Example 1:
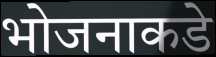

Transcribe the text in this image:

भोजनाकडे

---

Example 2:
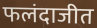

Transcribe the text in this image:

फलंदाजीत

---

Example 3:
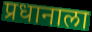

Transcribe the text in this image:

प्रधानाला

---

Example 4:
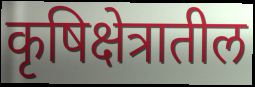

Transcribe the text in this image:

कृषिक्षेत्रातील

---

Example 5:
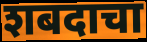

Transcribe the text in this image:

शबदाचा